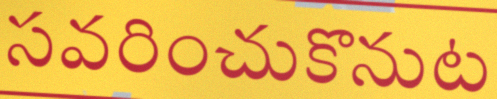
సవరించుకొనుట